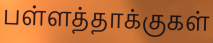
பள்ளத்தாக்குகள்